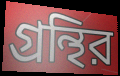
গ্রন্থির